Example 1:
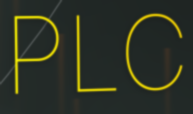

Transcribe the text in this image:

PLC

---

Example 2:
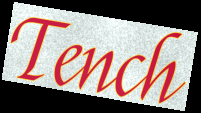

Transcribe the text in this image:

Tench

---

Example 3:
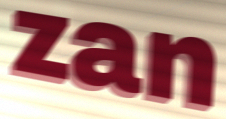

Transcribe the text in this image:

zan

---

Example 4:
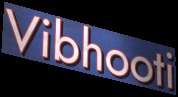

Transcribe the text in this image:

Vibhooti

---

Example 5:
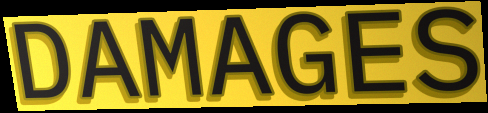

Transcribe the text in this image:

DAMAGES